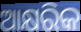
ଆକ୍ଷରିକ